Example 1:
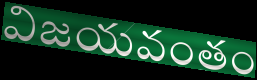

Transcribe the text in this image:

విజయవంతం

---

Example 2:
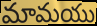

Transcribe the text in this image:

మామయు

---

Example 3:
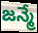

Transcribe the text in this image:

జన్మే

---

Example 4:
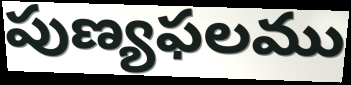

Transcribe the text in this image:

పుణ్యఫలము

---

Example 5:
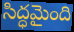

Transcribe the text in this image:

సిద్ధమైంది